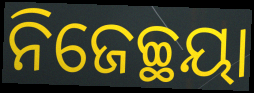
ନିଜେଚ୍ଛୟା